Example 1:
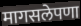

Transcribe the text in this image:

मागसलेपणा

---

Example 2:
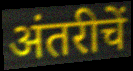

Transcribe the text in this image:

अंतरीचें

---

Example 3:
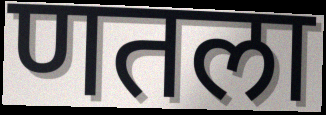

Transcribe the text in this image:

णतला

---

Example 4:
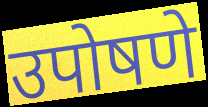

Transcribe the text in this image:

उपोषणे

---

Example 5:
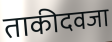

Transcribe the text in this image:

ताकीदवजा